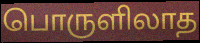
பொருளிலாத